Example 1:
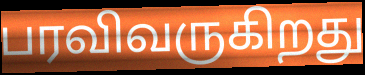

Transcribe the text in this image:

பரவிவருகிறது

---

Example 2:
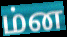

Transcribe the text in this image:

ம்ன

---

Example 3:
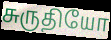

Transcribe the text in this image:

சுருதியோ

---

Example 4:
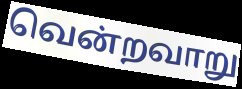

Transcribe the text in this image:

வென்றவாறு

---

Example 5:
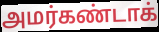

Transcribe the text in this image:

அமர்கண்டாக்